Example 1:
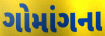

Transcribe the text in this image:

ગોમાંગના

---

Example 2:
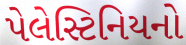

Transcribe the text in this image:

પેલેસ્ટિનિયનો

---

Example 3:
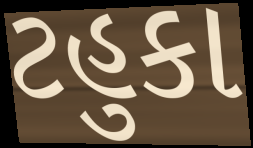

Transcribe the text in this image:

ટહુકા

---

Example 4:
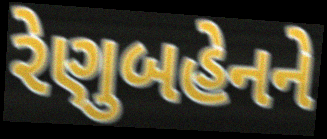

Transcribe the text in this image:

રેણુબહેનને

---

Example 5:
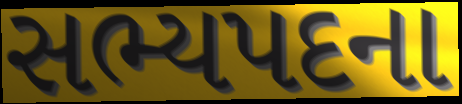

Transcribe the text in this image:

સભ્યપદના